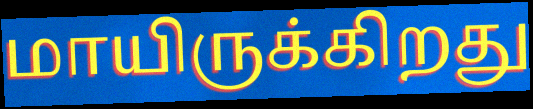
மாயிருக்கிறது